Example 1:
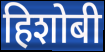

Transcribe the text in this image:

हिशोबी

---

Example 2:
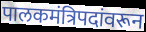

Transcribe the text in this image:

पालकमंत्रिपदांवरून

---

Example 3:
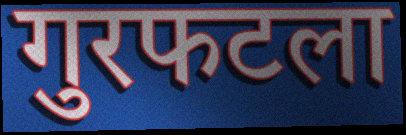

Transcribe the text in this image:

गुरफटला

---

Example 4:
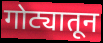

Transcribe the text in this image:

गोट्यातून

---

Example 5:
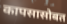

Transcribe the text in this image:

कापसासोबत